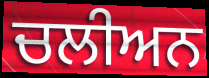
ਚਲੀਅਨ